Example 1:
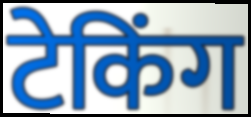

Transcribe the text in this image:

टेकिंग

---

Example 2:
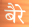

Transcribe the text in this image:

बैरे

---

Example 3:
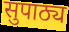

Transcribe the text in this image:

सुपाठ्य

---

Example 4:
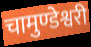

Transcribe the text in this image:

चामुण्डेश्वरी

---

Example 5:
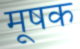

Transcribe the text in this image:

मूषक